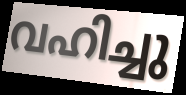
വഹിച്ചു